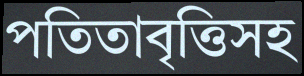
পতিতাবৃত্তিসহ